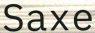
Saxe